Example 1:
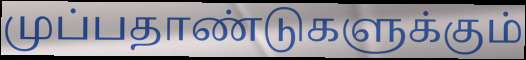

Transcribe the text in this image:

முப்பதாண்டுகளுக்கும்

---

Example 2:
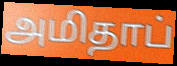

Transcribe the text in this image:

அமிதாப்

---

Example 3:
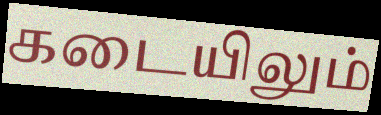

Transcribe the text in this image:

கடையிலும்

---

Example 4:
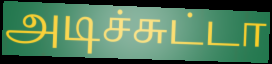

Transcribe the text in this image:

அடிச்சுட்டா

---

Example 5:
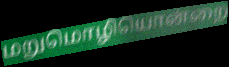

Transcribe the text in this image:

மறுமொழியொன்றை